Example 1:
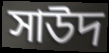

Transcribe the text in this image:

সাউদ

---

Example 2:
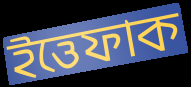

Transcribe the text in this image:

ইত্তেফাক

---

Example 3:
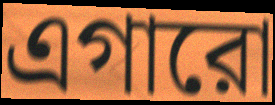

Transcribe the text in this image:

এগারো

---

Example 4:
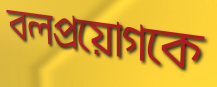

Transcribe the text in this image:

বলপ্রয়োগকে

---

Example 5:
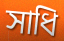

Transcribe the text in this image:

সাধি